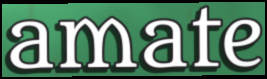
amate